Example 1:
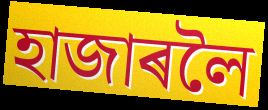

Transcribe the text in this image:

হাজাৰলৈ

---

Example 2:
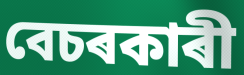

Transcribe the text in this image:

বেচৰকাৰী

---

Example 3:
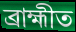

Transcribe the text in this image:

ব্ৰাহ্মীত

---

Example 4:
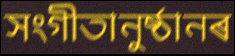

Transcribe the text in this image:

সংগীতানুষ্ঠানৰ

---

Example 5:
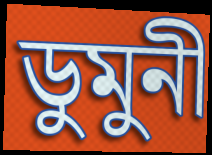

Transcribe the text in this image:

ডুমুনী